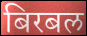
बिरबल